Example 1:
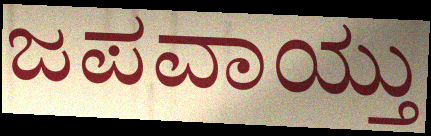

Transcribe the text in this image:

ಜಪವಾಯ್ತು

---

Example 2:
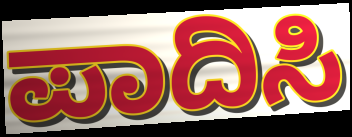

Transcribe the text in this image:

ಪಾದಿಸಿ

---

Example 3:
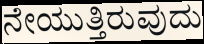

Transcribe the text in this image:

ನೇಯುತ್ತಿರುವುದು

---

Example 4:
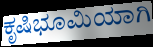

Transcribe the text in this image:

ಕೃಷಿಭೂಮಿಯಾಗಿ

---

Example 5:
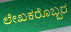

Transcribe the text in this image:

ಲೇಖಕರೊಬ್ಬರ